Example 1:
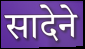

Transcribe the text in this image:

सादेने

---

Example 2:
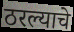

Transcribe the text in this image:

ठरल्याचे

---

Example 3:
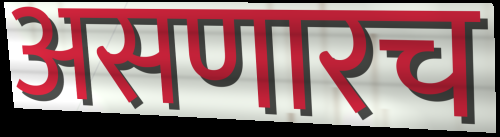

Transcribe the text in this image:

असणारच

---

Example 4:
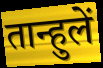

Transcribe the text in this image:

तान्हुलें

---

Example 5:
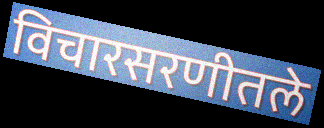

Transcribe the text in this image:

विचारसरणीतले